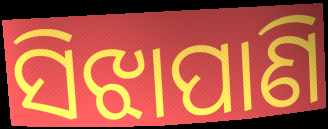
ସିଝାପାଣି